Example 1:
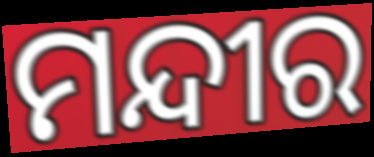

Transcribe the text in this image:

ମନ୍ଦୀର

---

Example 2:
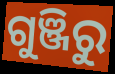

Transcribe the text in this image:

ଗୁଞ୍ଜିରୁ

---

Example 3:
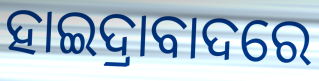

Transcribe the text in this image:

ହାଇଦ୍ରାବାଦରେ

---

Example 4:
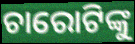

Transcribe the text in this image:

ଚାରୋଟିଙ୍କୁ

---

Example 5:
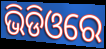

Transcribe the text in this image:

ଭିଡିଓରେ